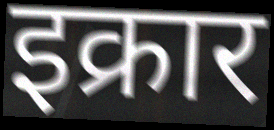
इक्रार